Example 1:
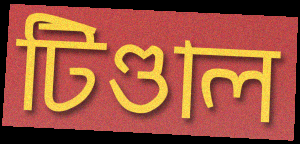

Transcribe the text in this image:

টিণ্ডাল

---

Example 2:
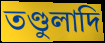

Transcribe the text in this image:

তণ্ডুলাদি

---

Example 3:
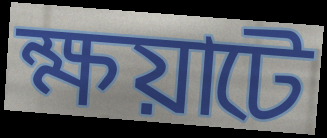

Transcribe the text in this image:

ক্ষয়াটে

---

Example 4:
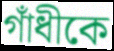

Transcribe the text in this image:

গাঁধীকে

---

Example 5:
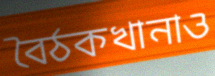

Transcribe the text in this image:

বৈঠকখানাও